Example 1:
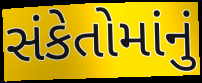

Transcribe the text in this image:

સંકેતોમાંનું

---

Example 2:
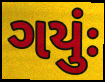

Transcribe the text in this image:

ગયુંઃ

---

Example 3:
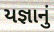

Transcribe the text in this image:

યજ્ઞાનું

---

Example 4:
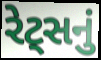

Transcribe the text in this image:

રેટ્સનું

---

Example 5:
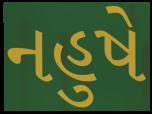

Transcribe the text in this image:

નહુષે